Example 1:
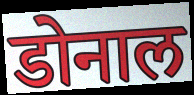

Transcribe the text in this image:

डोनाल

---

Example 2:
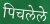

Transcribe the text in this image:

पिचलेले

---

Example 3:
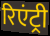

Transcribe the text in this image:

रिएंट्री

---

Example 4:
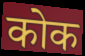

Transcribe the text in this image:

कोक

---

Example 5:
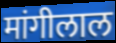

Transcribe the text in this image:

मांगीलाल